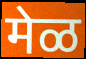
मेळ